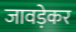
जावड़ेकर